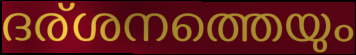
ദര്ശനത്തെയും